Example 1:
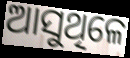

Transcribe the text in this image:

ଆସୁଥିଳେ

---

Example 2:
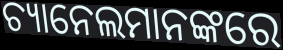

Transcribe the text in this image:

ଚ୍ୟାନେଲମାନଙ୍କରେ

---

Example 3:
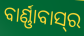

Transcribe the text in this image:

ବାର୍ଣ୍ଣାବାସ୍‌ର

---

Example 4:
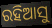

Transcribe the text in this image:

ରହିଆସୁ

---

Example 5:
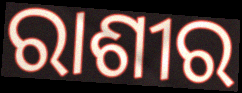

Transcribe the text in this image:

ରାଶୀର